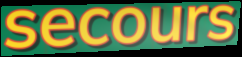
secours